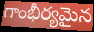
గాంభీర్యమైన